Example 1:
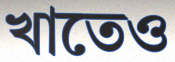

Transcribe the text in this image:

খাতেও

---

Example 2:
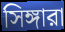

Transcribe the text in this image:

সিঙ্গারা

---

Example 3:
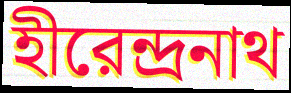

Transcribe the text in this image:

হীরেন্দ্রনাথ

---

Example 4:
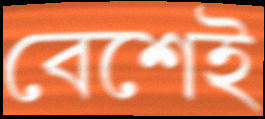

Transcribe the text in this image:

বেশেই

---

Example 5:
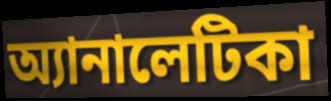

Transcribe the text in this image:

অ্যানালেটিকা